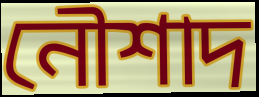
নৌশাদ